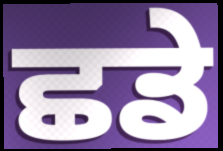
ਛਡੇ